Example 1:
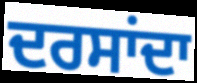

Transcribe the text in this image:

ਦਰਸਾਂਦਾ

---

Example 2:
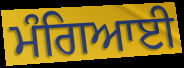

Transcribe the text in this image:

ਮੰਗਿਆਈ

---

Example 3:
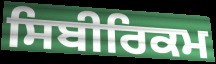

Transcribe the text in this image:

ਸਿਬੀਰਿਕਮ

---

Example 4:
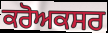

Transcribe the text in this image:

ਕਰੋਅਕਸਰ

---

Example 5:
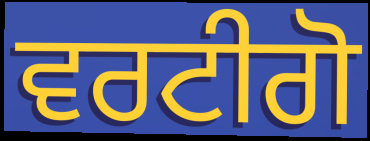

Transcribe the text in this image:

ਵਰਟੀਗੋ